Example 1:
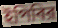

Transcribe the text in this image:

ইপিবির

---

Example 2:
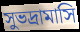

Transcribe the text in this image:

সুভদ্রামাসি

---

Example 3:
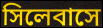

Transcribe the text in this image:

সিলেবাসে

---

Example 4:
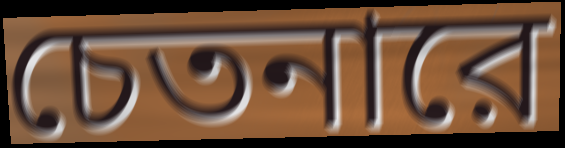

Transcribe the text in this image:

চেতনারে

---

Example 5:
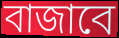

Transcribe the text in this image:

বাজাবে